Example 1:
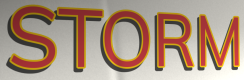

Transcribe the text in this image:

STORM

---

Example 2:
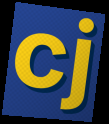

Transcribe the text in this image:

cj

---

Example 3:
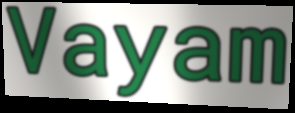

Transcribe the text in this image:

Vayam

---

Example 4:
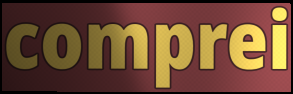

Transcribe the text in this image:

comprei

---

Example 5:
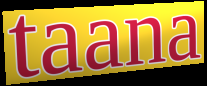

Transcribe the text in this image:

taana